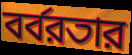
বর্বরতার